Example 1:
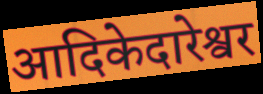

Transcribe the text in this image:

आदिकेदारेश्वर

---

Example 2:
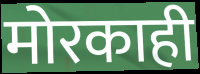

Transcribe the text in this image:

मोरकाही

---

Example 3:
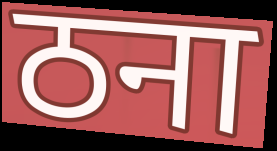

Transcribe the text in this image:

ठना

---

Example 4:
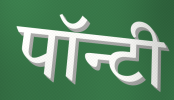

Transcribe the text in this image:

पॉन्टी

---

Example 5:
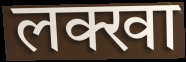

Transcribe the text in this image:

लक्खा